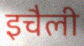
इचैली